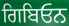
ਗਿਬਿਓਨ